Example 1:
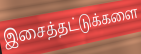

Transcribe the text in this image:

இசைத்தட்டுக்களை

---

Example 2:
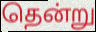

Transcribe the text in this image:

தென்று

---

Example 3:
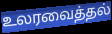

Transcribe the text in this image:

உலரவைத்தல்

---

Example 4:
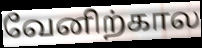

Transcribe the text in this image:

வேனிற்கால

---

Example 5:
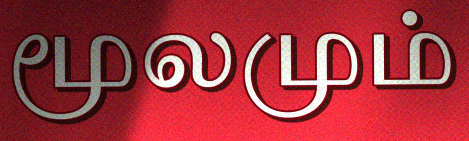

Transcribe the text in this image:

மூலமும்